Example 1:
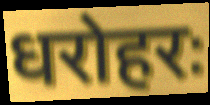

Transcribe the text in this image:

धरोहरः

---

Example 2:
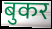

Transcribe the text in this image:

बुकर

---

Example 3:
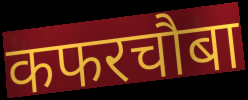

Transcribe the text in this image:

कफरचौबा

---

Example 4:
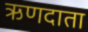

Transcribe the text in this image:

ऋणदाता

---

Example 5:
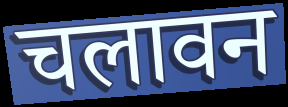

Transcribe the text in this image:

चलावन